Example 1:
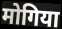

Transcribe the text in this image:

मोगिया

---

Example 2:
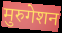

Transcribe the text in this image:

मुरुगेशन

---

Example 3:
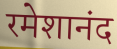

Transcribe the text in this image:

रमेशानंद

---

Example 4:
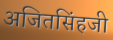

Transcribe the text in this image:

अजितसिंहजी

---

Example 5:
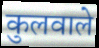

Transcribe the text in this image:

कुलवाले